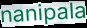
nanipala